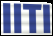
IITI